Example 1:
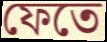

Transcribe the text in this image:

ফেতে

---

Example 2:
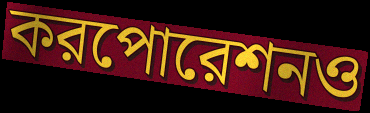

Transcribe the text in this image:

করপোরেশনও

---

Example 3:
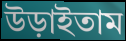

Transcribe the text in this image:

উড়াইতাম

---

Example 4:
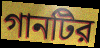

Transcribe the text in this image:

গানটির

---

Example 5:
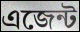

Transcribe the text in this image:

এজেন্ট